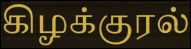
கிழக்குரல்